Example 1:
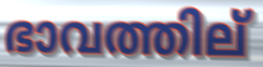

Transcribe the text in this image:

ഭാവത്തില്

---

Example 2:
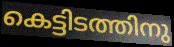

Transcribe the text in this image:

കെട്ടിടത്തിനു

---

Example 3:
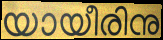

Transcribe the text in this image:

യായീരിനു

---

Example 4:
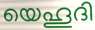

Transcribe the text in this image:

യെഹൂദി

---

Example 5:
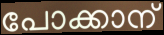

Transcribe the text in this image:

പോക്കാന്